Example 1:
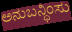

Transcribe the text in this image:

ಅನುಬನ್ಧಿಂಸು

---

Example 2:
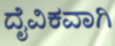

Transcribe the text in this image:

ದೈವಿಕವಾಗಿ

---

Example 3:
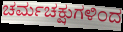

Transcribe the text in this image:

ಚರ್ಮಚಕ್ಷುಗಳಿಂದ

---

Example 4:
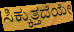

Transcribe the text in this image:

ಸಿಕ್ಕುತ್ತದೆಯೇ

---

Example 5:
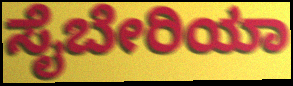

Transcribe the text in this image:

ಸೈಬೇರಿಯಾ